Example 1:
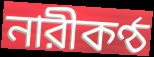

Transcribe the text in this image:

নারীকণ্ঠ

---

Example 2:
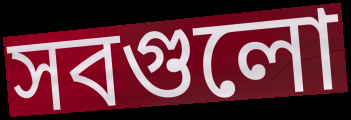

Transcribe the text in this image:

সবগুলো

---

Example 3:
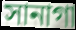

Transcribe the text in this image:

সানাগা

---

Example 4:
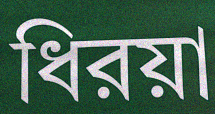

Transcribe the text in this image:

ধিরয়া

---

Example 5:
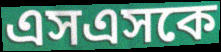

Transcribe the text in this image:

এসএসকে